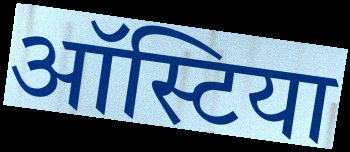
ऑस्टिया